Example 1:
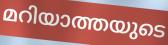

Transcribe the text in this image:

മറിയാത്തയുടെ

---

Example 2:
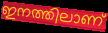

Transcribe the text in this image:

ഇനത്തിലാണ്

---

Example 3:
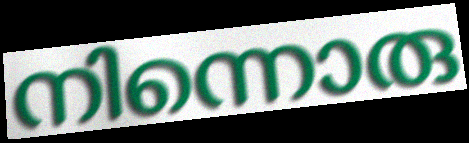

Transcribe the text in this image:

നിന്നൊരു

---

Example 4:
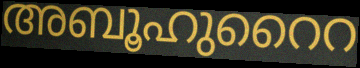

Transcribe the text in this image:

അബൂഹുറൈറ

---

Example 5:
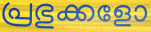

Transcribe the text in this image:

പ്രഭുക്കളോ